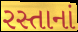
રસ્તાનાં